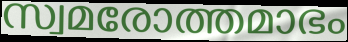
സ്വമരോത്തമാഭം